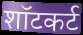
शॉटकर्ट